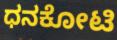
ಧನಕೋಟಿ